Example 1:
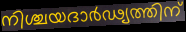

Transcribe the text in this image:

നിശ്ചയദാർഢ്യത്തിന്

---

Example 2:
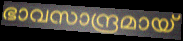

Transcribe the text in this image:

ഭാവസാന്ദ്രമായ്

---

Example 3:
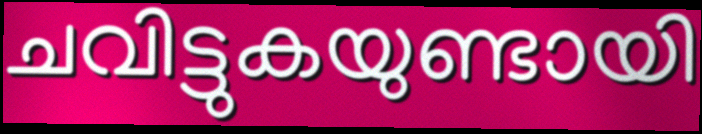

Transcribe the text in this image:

ചവിട്ടുകയുണ്ടായി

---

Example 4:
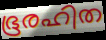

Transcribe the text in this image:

ഭൂരഹിത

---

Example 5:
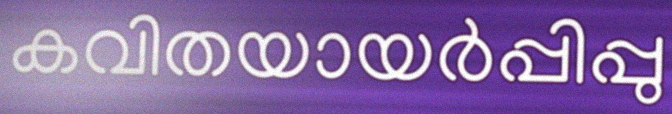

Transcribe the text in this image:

കവിതയായർപ്പിപ്പു